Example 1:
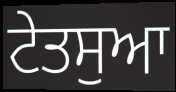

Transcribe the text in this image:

ਟੇਤਸੁਆ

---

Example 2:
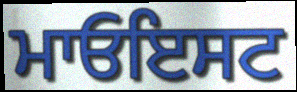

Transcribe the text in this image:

ਮਾਓਇਸਟ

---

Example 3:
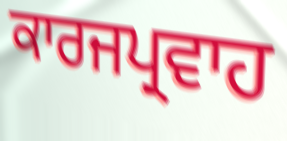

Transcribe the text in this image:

ਕਾਰਜਪ੍ਰਵਾਹ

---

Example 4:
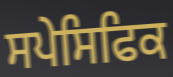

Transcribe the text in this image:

ਸਪੇਸਿਫਿਕ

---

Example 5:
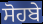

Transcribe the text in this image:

ਸੋਹਬੇ